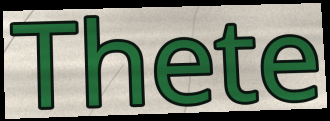
Thete